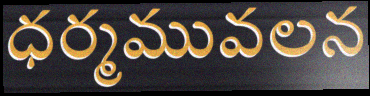
ధర్మమువలన